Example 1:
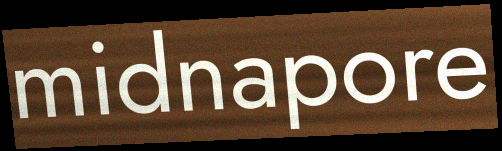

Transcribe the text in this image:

midnapore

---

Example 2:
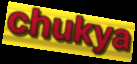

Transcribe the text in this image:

chukya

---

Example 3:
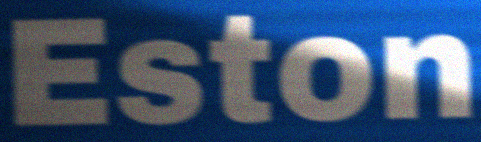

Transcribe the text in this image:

Eston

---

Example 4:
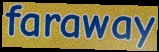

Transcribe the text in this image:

faraway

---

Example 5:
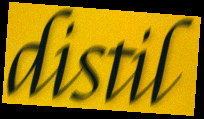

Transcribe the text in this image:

distil